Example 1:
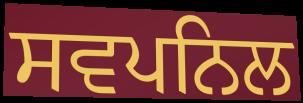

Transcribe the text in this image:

ਸਵਪਨਿਲ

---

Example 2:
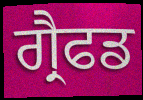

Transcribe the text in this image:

ਗ੍ਰੈਫਡ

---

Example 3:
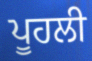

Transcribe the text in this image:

ਪੂਹਲੀ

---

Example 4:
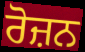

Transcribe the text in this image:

ਰੋਜ਼ਨ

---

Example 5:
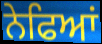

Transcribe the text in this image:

ਨੇਫਿਆਂ